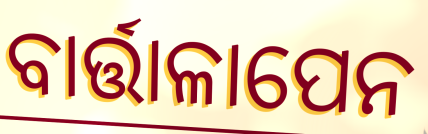
ବାର୍ତ୍ତାଳାପେନ